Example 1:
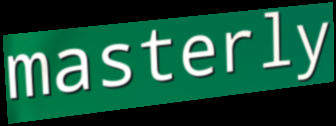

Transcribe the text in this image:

masterly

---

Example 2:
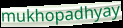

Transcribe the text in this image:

mukhopadhyay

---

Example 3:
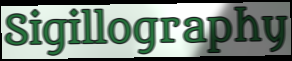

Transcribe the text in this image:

Sigillography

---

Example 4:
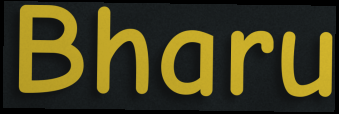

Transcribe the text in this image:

Bharu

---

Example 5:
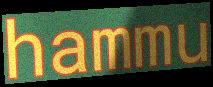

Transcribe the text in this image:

hammu